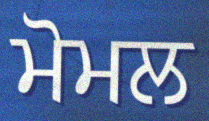
ਮੋਮਲ